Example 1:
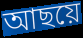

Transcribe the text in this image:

আছয়ে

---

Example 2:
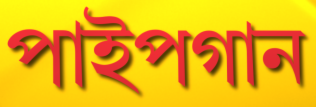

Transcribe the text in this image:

পাইপগান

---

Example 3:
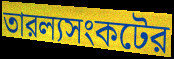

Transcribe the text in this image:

তারল্যসংকটের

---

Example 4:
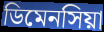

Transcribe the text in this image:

ডিমেনসিয়া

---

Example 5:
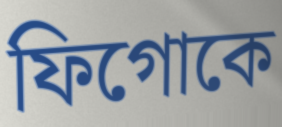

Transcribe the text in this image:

ফিগোকে